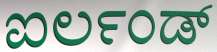
ಐರ್ಲಂಡ್